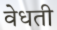
वेधती